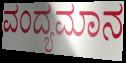
ವಂದ್ಯಮಾನ